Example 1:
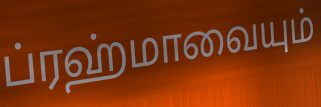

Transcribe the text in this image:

ப்ரஹ்மாவையும்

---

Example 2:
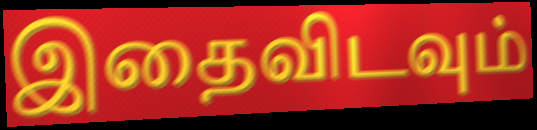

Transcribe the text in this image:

இதைவிடவும்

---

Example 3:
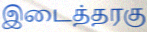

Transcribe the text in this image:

இடைத்தரகு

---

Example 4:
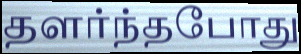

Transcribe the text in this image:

தளர்ந்தபோது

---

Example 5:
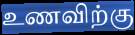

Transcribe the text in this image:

உணவிற்கு